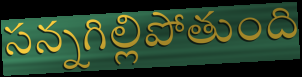
సన్నగిల్లిపోతుంది